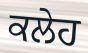
ਕਲੇਹ